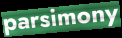
parsimony